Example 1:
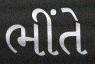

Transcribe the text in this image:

ભીંતે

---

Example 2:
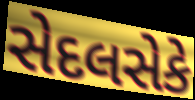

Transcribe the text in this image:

સેદલસેકે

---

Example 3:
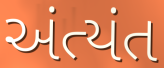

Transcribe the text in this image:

અંત્યંત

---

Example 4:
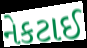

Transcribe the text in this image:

નેકટાઈ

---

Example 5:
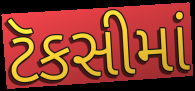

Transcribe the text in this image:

ટૅકસીમાં